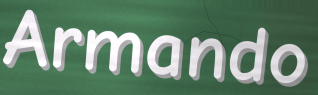
Armando